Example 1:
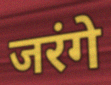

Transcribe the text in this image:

जरंगे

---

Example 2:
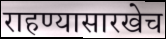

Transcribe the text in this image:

राहण्यासारखेच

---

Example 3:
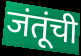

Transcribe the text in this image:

जंतूंची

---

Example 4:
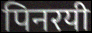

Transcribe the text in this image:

पिनरयी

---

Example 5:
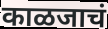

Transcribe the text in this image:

काळजाचं